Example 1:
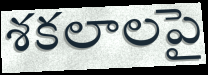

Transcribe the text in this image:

శకలాలపై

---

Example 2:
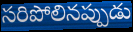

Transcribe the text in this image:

సరిపోలినప్పుడు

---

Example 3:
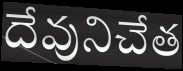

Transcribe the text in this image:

దేవునిచేత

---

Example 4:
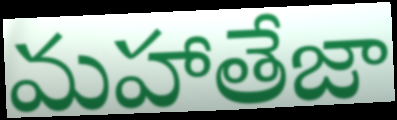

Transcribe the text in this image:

మహాతేజా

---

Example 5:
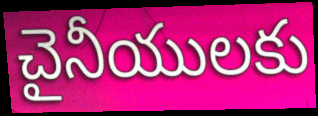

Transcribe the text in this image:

చైనీయులకు